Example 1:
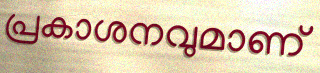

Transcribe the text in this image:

പ്രകാശനവുമാണ്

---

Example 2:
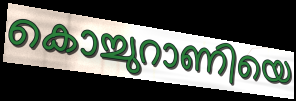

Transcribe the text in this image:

കൊച്ചുറാണിയെ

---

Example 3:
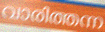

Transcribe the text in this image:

വാരിത്തന്ന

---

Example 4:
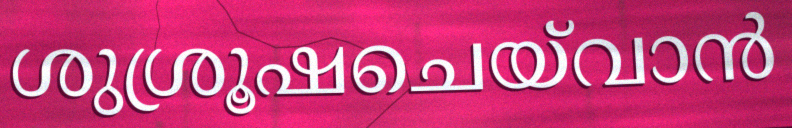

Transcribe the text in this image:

ശുശ്രൂഷചെയ്‌വാൻ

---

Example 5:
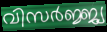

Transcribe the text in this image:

വിസർജ്ജ്യ